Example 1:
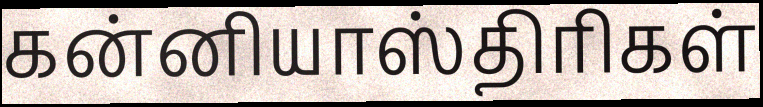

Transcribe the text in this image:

கன்னியாஸ்திரிகள்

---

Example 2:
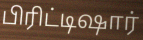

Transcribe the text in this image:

பிரிட்டிஷார்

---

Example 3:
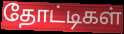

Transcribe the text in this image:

தோட்டிகள்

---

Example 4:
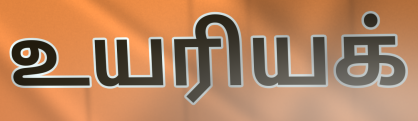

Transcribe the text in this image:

உயரியக்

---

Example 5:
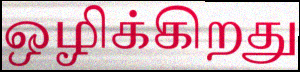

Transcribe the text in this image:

ஒழிக்கிறது